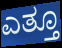
ಎತ್ತೂ